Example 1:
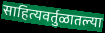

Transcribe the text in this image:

साहित्यवर्तुळातल्या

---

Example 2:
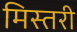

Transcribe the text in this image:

मिस्तरी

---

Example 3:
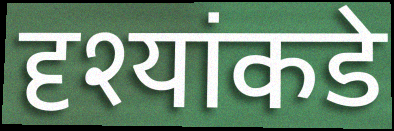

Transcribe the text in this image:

दृश्यांकडे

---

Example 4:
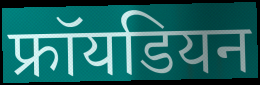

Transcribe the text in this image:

फ्रॉयडियन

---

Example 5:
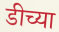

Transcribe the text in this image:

डीच्या